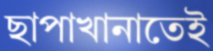
ছাপাখানাতেই